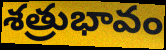
శత్రుభావం